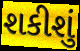
શકીશું